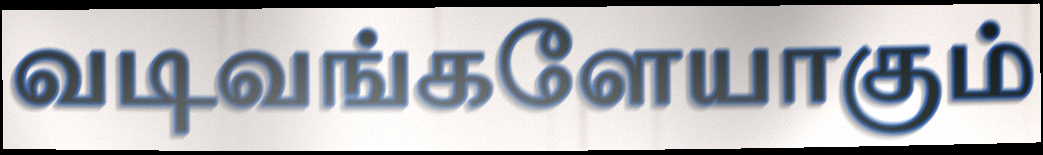
வடிவங்களேயாகும்